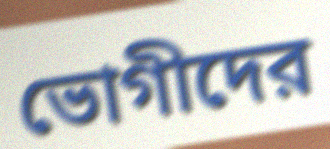
ভোগীদের